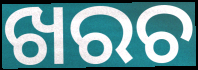
ଖରଚ